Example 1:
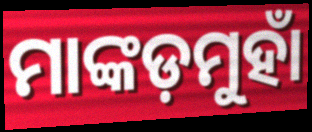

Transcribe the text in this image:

ମାଙ୍କଡ଼ମୁହାଁ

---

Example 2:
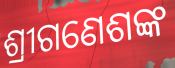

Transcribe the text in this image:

ଶ୍ରୀଗଣେଶଙ୍କ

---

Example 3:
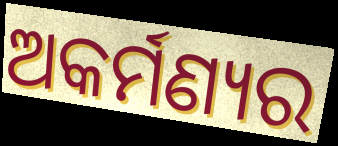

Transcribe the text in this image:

ଅକର୍ମଣ୍ୟର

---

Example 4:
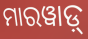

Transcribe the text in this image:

ମାରୱାଡ଼୍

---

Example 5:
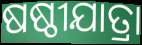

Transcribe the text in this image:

ଷଷ୍ଠୀଯାତ୍ରା